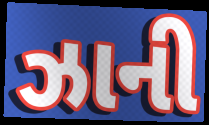
ઝાની